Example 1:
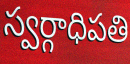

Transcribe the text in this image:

స్వర్గాధిపతి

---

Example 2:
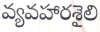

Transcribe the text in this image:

వ్యవహారశైలి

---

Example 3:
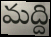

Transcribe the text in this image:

మద్ది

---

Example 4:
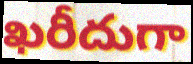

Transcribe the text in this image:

ఖరీదుగా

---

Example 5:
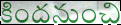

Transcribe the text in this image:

కిందనుంచి